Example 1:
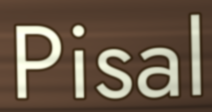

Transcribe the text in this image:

Pisal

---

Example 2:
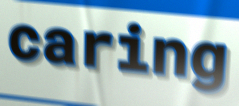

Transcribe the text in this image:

caring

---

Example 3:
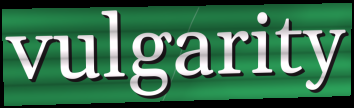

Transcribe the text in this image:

vulgarity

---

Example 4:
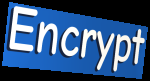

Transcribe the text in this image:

Encrypt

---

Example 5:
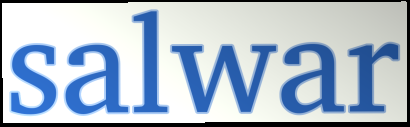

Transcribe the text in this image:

salwar